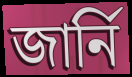
জার্নি